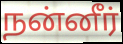
நன்னீர்